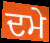
ਦਮੇ